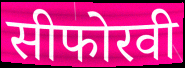
सीफोरवी